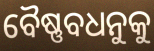
ବୈଷ୍ଣବଧନୁକୁ